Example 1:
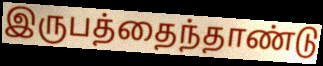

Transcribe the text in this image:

இருபத்தைந்தாண்டு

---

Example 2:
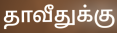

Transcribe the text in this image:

தாவீதுக்கு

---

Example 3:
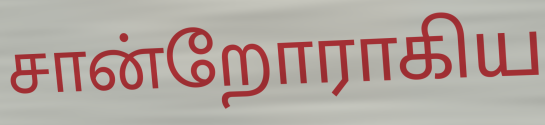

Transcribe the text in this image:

சான்றோராகிய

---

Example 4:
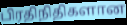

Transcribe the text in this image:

பிரதிநிதிகளான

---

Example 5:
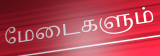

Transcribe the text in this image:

மேடைகளும்